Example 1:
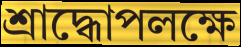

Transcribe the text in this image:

শ্রাদ্ধোপলক্ষে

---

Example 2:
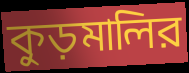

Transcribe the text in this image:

কুড়মালির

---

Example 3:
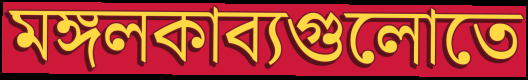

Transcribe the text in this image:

মঙ্গলকাব্যগুলোতে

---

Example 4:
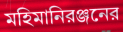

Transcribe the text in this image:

মহিমানিরঞ্জনের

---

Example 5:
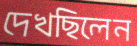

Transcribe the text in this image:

দেখছিলেন